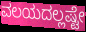
ವಲಯದಲ್ಲಷ್ಟೇ